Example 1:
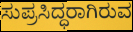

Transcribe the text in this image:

ಸುಪ್ರಸಿದ್ಧರಾಗಿರುವ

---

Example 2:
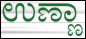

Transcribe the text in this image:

ಉಣ್ಣಾ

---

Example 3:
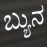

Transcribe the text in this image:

ಬ್ಯುನ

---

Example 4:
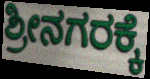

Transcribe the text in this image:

ಶ್ರೀನಗರಕ್ಕೆ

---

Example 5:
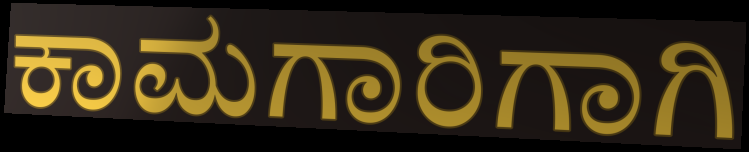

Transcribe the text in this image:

ಕಾಮಗಾರಿಗಾಗಿ